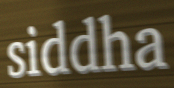
siddha